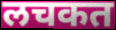
लचकत